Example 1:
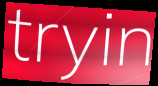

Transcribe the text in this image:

tryin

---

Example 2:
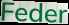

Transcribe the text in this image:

Feder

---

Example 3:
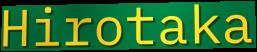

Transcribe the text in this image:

Hirotaka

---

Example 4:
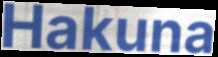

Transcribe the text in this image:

Hakuna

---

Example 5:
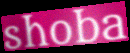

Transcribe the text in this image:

shoba